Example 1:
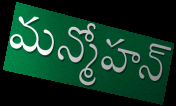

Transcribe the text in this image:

మన్మోహన్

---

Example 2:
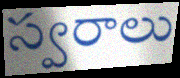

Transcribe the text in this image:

స్వరాలు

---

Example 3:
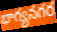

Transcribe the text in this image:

భాగ్యనగర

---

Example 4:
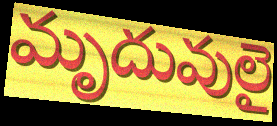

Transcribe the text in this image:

మృదువులై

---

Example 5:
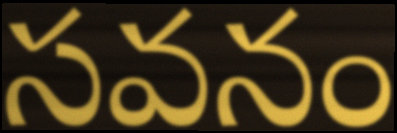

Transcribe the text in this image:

సవనం